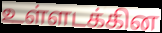
உள்ளடக்கின